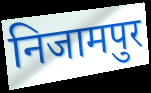
निजामपुर